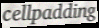
cellpadding